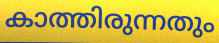
കാത്തിരുന്നതും